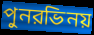
পুনরভিনয়